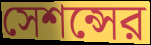
সেশন্সের